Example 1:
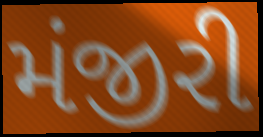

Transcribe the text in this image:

મંજીરી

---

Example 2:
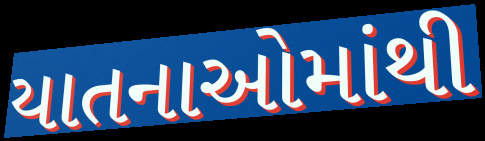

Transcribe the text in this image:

યાતનાઓમાંથી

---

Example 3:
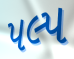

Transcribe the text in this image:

પલ્પ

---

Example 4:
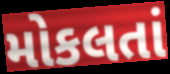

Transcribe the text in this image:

મોકલતાં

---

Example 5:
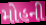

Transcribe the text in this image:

મોહની